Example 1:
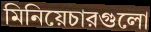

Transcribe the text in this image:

মিনিয়েচারগুলো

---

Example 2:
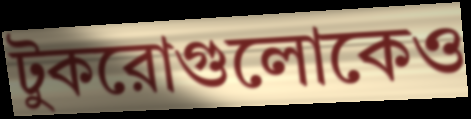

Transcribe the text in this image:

টুকরোগুলোকেও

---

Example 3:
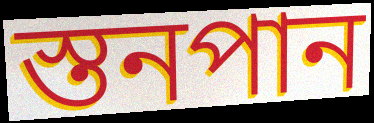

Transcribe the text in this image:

স্তনপান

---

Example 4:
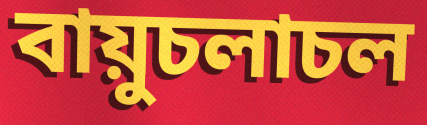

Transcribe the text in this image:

বায়ুচলাচল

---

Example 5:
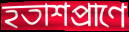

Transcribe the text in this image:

হতাশপ্রাণে